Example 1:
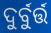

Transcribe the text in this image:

ଦୁର୍ବୁର୍ତ୍ତ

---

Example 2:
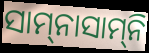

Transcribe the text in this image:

ସାମ୍‍ନାସାମ୍‍ନି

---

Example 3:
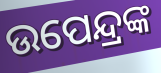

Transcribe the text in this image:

ଉପେନ୍ଦ୍ରଙ୍କ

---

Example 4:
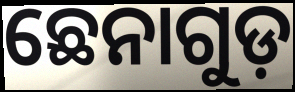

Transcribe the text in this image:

ଛେନାଗୁଡ଼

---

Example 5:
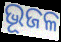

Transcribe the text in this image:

ଭୂଜଳ